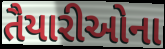
તૈયારીઓના